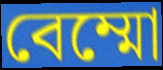
বেম্মো